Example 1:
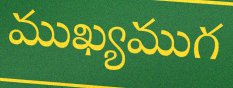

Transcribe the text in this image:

ముఖ్యముగ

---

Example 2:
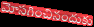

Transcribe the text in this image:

మోసగించినందుకు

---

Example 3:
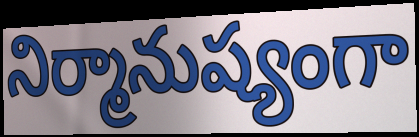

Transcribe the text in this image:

నిర్మానుష్యంగా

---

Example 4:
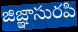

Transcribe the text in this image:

జిజ్ఞాసురపి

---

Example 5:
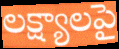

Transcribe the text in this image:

లక్ష్యాలపై